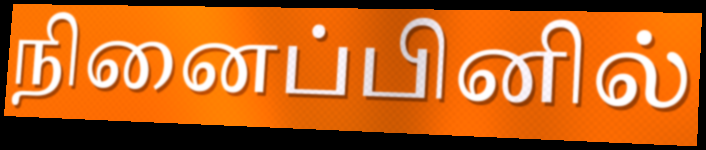
நினைப்பினில்